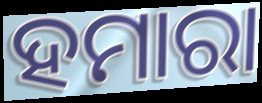
ହମାରା